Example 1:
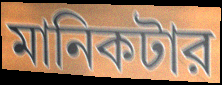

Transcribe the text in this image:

মানিকটার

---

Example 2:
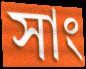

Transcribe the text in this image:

সাং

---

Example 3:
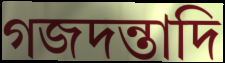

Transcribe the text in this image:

গজদন্তাদি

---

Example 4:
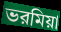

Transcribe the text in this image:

ভরমিয়া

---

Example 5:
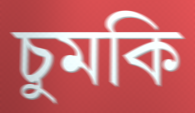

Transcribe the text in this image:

চুমকি